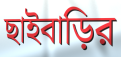
ছাইবাড়ির